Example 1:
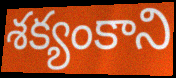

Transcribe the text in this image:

శక్యంకాని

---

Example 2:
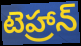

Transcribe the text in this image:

టెహ్రాన్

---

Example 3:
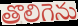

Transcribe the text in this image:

తొలిగెను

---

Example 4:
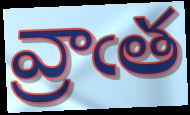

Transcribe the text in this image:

వ్రాఁత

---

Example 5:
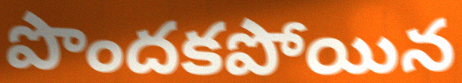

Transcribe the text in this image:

పొందకపోయిన